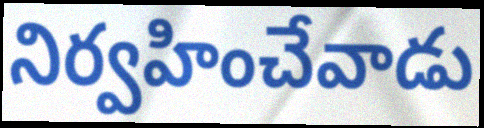
నిర్వహించేవాడు